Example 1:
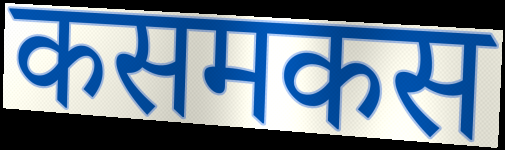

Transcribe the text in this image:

कसमकस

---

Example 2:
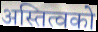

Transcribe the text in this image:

अस्तित्वको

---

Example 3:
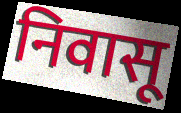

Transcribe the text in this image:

निवासू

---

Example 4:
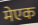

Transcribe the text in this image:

मेएक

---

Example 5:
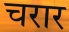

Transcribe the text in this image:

चरार